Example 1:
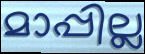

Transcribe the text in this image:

മാപ്പില്ല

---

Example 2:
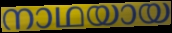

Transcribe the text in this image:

നാഥയായ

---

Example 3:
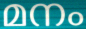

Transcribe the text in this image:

മനം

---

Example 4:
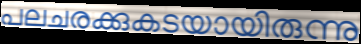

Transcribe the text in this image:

പലചരക്കുകടയായിരുന്നു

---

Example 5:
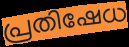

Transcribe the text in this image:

പ്രതിഷേധ